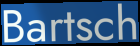
Bartsch